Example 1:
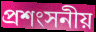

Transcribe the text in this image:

প্রশংসনীয়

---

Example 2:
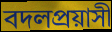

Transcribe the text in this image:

বদলপ্রয়াসী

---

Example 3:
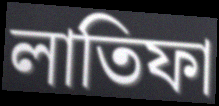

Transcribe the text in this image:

লাতিফা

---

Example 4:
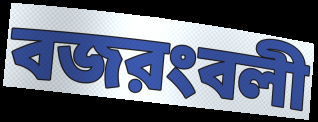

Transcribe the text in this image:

বজরংবলী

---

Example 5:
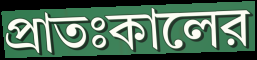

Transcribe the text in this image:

প্রাতঃকালের